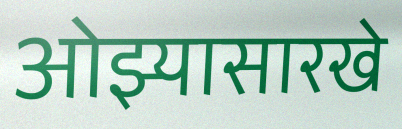
ओझ्यासारखे